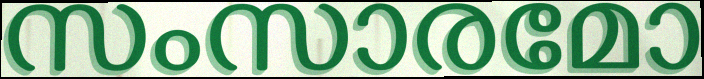
സംസാരമോ